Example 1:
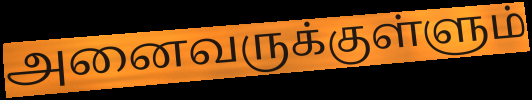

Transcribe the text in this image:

அனைவருக்குள்ளும்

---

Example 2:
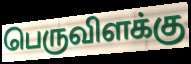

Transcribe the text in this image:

பெருவிளக்கு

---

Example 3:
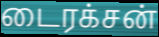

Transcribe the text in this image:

டைரக்சன்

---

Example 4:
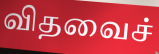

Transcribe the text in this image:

விதவைச்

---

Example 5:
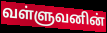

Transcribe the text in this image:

வள்ளுவனின்